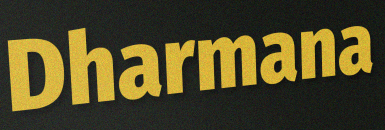
Dharmana